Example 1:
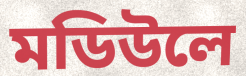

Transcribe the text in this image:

মডিউলে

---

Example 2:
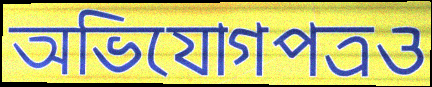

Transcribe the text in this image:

অভিযোগপত্রও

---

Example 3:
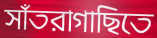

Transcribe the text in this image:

সাঁতরাগাছিতে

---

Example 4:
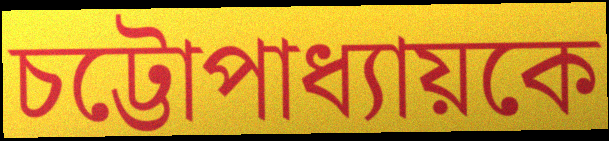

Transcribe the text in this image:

চট্টোপাধ্যায়কে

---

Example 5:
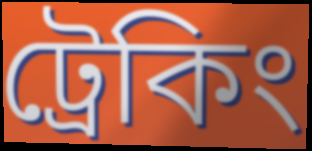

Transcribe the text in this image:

ট্রেকিং